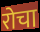
रोचा